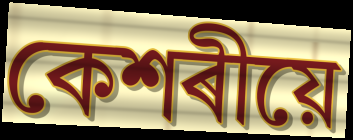
কেশৰীয়ে